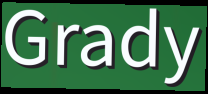
Grady